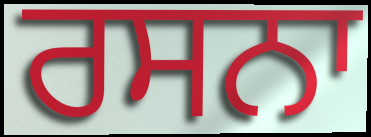
ਰਸਨਾ